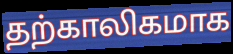
தற்காலிகமாக